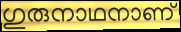
ഗുരുനാഥനാണ്